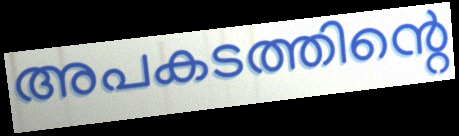
അപകടത്തിന്റെ